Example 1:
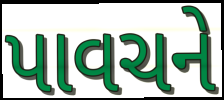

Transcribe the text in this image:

પાવચને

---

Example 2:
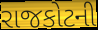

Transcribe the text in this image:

રાજકોટની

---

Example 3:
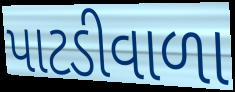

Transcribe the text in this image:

પાટડીવાળા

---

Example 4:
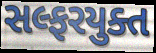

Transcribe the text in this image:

સલ્ફરયુક્ત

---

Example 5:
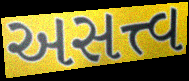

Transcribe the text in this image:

અસત્ત્વ